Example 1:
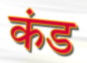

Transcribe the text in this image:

कंड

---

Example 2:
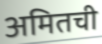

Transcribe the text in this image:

अमितची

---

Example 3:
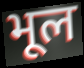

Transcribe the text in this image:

भूल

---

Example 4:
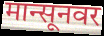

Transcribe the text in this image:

मान्सूनवर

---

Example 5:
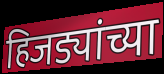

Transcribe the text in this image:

हिजड्यांच्या